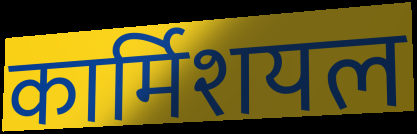
कार्मिशयल